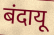
बंदायू